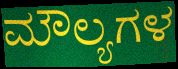
ಮೌಲ್ಯಗಳ